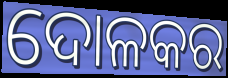
ଦୋଳକର